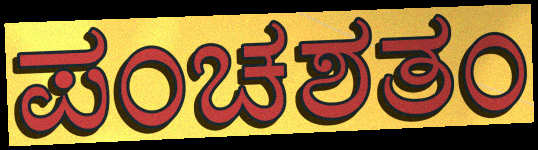
ಪಂಚಶತಂ